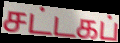
சட்டகப்